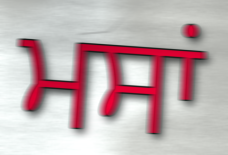
ਮਸਾਂ